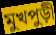
মুখপুড়ী